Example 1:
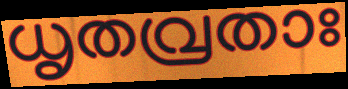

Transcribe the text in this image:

ധൃതവ്രതാഃ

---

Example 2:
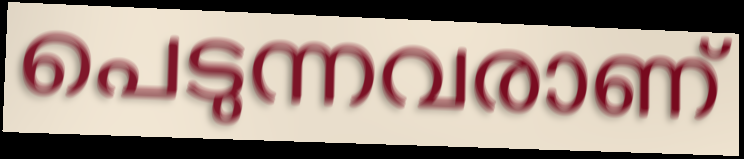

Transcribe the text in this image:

പെടുന്നവരാണ്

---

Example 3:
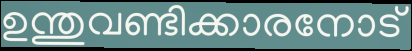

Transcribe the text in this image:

ഉന്തുവണ്ടിക്കാരനോട്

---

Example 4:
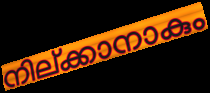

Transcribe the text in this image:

നില്ക്കാനാകും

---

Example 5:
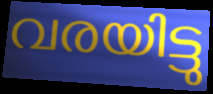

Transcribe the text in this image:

വരയിട്ടു